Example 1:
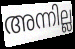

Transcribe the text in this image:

അന്നില്ല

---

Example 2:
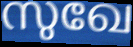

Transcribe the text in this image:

സുഖേ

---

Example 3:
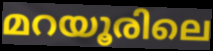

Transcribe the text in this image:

മറയൂരിലെ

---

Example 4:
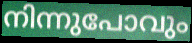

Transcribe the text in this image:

നിന്നുപോവും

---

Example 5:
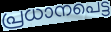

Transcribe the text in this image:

പ്രധാനപെട്ട